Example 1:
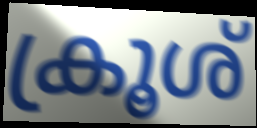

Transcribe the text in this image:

ക്രൂശ്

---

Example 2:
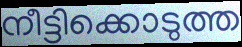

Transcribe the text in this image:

നീട്ടിക്കൊടുത്ത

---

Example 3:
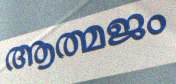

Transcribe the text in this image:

ആത്മജം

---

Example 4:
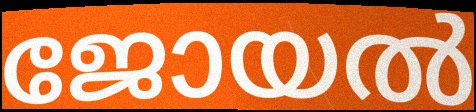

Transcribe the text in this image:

ജോയൽ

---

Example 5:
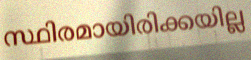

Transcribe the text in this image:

സ്ഥിരമായിരിക്കയില്ല